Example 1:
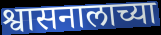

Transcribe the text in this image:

श्वासनालाच्या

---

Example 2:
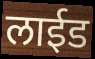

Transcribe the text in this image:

लाईड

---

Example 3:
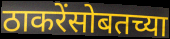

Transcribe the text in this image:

ठाकरेंसोबतच्या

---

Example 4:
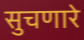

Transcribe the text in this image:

सुचणारे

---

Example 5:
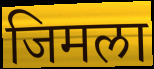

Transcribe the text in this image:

जिमला